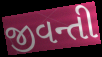
જીવન્તી